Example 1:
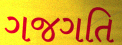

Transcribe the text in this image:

ગજગતિ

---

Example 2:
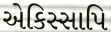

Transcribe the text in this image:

એકિસ્સાપિ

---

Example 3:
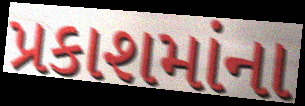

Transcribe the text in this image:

પ્રકાશમાંના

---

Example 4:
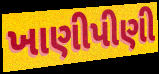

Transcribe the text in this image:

ખાણીપીણી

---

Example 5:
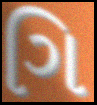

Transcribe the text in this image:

ગિ